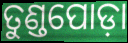
ତୁଣ୍ଡପୋଡ଼ା